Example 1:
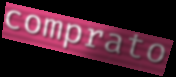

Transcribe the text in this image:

comprato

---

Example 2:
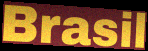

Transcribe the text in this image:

Brasil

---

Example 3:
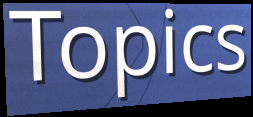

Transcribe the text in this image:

Topics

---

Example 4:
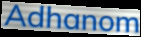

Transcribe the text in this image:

Adhanom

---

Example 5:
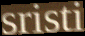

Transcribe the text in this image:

sristi